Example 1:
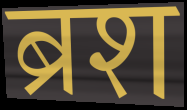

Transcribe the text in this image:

ब्रश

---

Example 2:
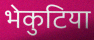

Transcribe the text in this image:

भेकुटिया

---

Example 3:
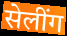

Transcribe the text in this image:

सेलींग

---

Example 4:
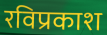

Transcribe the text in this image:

रविप्रकाश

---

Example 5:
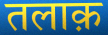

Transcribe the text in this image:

तलाक़